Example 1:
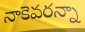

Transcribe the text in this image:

నాకెవరన్నా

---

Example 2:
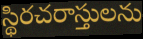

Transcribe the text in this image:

స్థిరచరాస్తులను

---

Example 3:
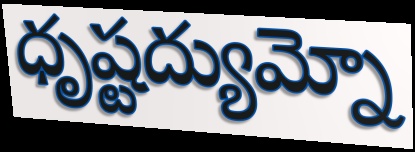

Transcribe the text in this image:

ధృష్టద్యుమ్నో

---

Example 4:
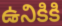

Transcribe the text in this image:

ఉనికికి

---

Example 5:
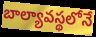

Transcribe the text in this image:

బాల్యావస్థలోనే